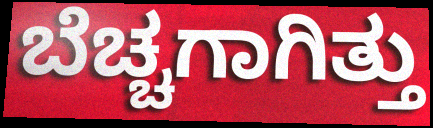
ಬೆಚ್ಚಗಾಗಿತ್ತು